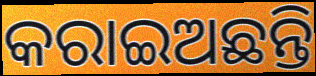
କରାଇଅଛନ୍ତି